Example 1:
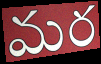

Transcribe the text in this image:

మర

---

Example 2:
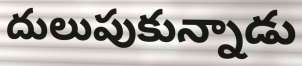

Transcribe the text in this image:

దులుపుకున్నాడు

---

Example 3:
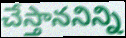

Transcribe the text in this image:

చేస్తాననిన్ని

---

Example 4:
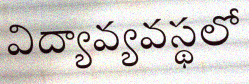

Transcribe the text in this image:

విద్యావ్యవస్థలో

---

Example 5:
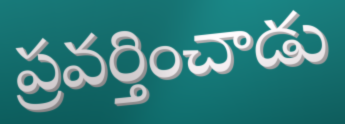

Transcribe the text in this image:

ప్రవర్తించాడు